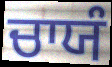
ਚਾਯੰ